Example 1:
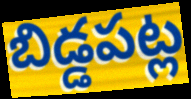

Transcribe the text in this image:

బిడ్డపట్ల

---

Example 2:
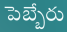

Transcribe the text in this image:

పెబ్బేరు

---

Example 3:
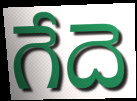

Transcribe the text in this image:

గేదె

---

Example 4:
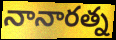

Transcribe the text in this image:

నానారత్న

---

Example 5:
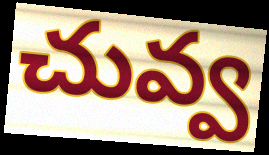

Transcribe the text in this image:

చువ్వ